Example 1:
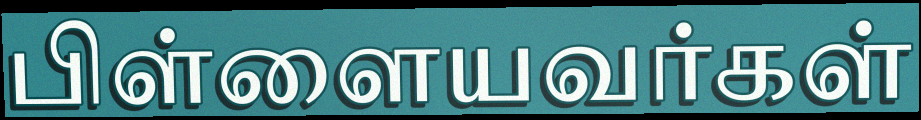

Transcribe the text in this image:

பிள்ளையவர்கள்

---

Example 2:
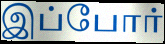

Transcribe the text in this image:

இப்போர்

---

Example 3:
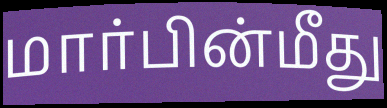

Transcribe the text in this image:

மார்பின்மீது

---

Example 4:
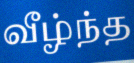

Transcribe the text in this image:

வீழ்ந்த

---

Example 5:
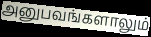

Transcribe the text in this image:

அனுபவங்களாலும்